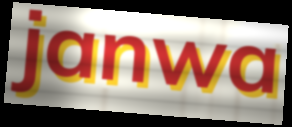
janwa